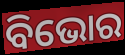
ବିଭୋର